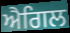
ਐਗਿਲ